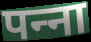
पन्‍ना